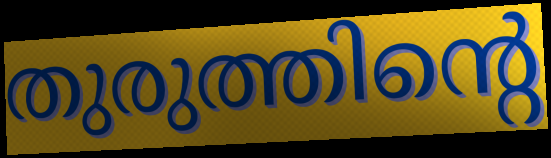
തുരുത്തിന്റെ